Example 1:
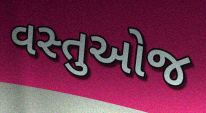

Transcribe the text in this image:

વસ્તુઓજ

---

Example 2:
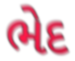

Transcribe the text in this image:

ભેદ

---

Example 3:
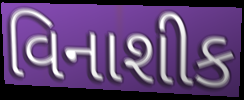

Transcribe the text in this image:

વિનાશીક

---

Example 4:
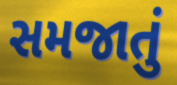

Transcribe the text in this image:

સમજાતું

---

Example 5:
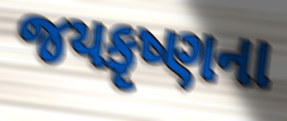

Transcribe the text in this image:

જયકૃષ્ણના